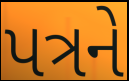
પત્રને